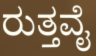
ರುತ್ತವೈ